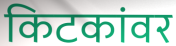
किटकांवर